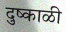
दुष्काळी